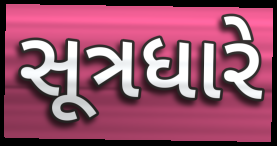
સૂત્રધારે